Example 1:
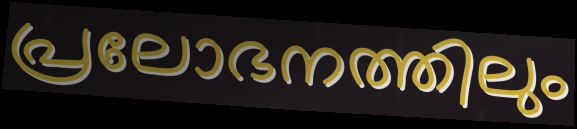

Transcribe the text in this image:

പ്രലോഭനത്തിലും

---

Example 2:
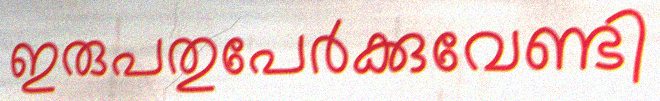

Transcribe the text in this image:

ഇരുപതുപേർക്കുവേണ്ടി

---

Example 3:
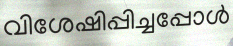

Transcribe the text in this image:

വിശേഷിപ്പിച്ചപ്പോൾ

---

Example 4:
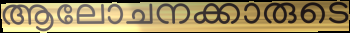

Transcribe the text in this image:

ആലോചനക്കാരുടെ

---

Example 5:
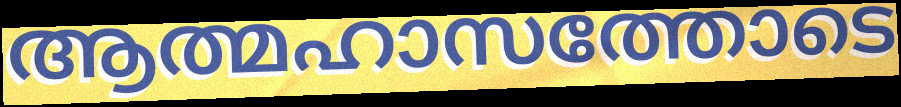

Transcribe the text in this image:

ആത്മഹാസത്തോടെ